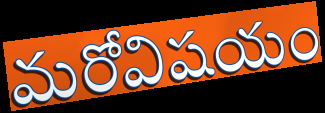
మరోవిషయం